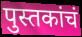
पुस्तकांचं